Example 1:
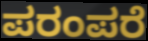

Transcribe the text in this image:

ಪರಂಪರೆ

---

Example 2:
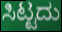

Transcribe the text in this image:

ಸಿಟ್ಟದು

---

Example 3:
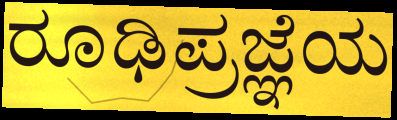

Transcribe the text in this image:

ರೂಢಿಪ್ರಜ್ಞೆಯ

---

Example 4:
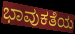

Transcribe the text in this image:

ಭಾವುಕತೆಯ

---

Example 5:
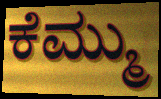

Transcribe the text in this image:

ಕೆಮ್ಮು